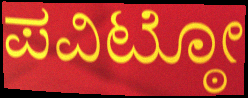
ಪವಿಟ್ಠೋ